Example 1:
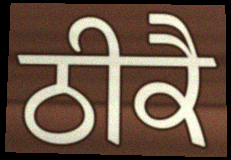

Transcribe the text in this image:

ਠੀਕੈ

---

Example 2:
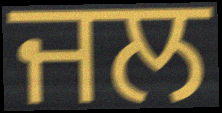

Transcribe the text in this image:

ਜਲ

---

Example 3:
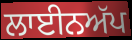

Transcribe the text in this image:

ਲਾਈਨਅੱਪ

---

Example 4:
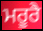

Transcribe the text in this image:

ਮਰੂਰੈ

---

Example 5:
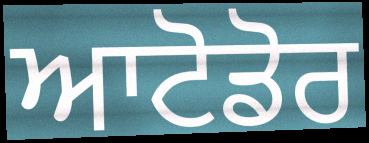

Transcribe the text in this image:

ਆਟੋਡੋਰ